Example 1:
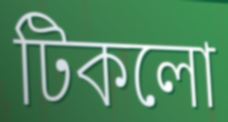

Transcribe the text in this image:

টিকলো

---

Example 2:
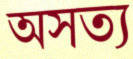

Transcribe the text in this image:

অসত্য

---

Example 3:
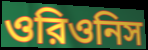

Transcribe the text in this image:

ওরিওনিস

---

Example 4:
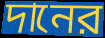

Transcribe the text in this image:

দানের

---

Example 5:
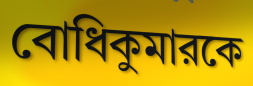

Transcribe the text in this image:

বোধিকুমারকে